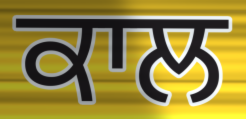
ਕਾਲ